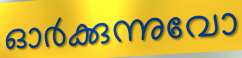
ഓർക്കുന്നുവോ